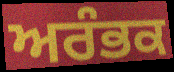
ਅਰੰਭਕ